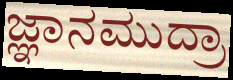
ಜ್ಞಾನಮುದ್ರಾ